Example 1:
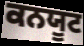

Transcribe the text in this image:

ਕਨਯੂਟ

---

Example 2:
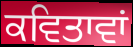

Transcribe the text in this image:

ਕਵਿਤਾਵਾਂ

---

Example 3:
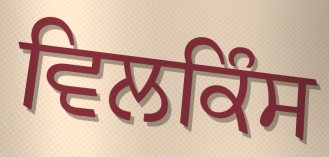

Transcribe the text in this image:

ਵਿਲਕਿੰਸ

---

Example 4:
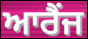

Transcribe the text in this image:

ਆਰੈਂਜ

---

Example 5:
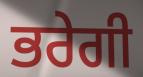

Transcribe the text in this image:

ਭਰੇਗੀ